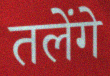
तलेंगे